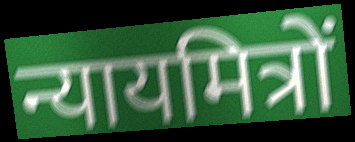
न्यायमित्रों